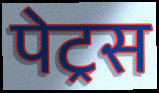
पेट्रस